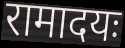
रामादयः